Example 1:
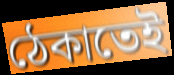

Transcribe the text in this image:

ঠেকাতেই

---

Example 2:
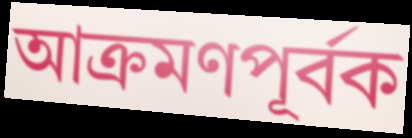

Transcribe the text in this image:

আক্রমণপূর্বক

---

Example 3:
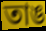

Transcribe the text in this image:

তাঙ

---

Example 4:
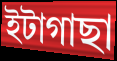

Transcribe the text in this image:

ইটাগাছা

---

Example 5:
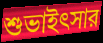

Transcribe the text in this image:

শুভাইৎসার